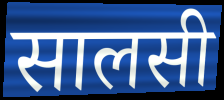
सालसी